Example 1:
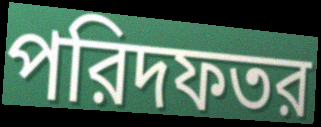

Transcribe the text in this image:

পরিদফতর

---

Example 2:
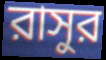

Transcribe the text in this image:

রাসুর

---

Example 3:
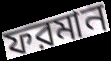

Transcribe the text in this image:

ফরমান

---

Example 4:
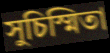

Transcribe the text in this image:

সুচিস্মিতা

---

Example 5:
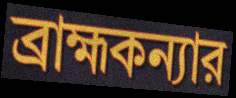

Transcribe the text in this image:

ব্রাহ্মকন্যার